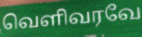
வெளிவரவே